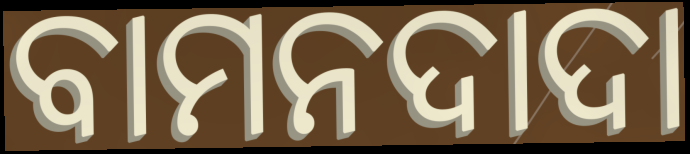
ବାମନଦାଦା